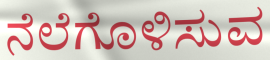
ನೆಲೆಗೊಳಿಸುವ